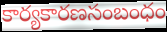
కార్యకారణసంబంధం